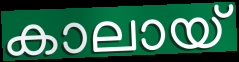
കാലായ്